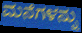
ಮನೆಗಳನ್ನು